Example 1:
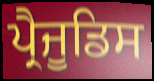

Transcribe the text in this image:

ਪ੍ਰੈਜੂਡਿਸ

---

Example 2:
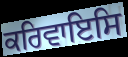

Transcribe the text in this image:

ਕਰਿਵਾਇਸਿ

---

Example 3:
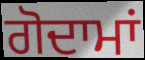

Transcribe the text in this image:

ਗੋਦਾਮਾਂ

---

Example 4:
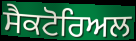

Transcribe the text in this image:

ਸੈਕਟੋਰਿਅਲ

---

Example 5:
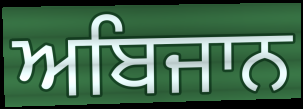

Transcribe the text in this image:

ਅਬਿਜਾਨ